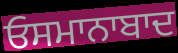
ਓਸਮਾਨਾਬਾਦ